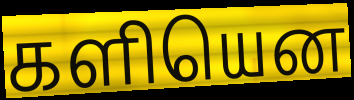
களியென